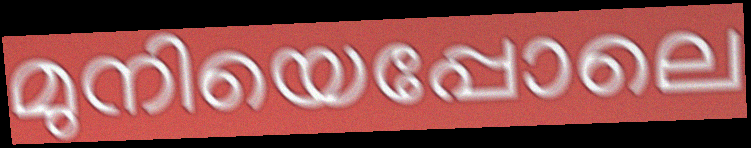
മുനിയെപ്പോലെ